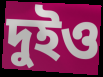
দুইও